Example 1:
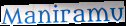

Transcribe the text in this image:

Maniramu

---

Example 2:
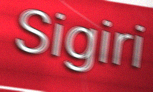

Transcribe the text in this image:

Sigiri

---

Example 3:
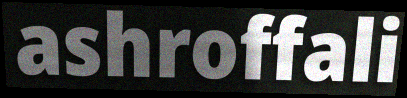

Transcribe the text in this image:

ashroffali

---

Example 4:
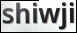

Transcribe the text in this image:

shiwji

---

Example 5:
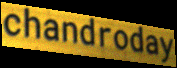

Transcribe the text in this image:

chandroday